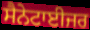
ਸੈਨੇਟਾਈਜਰ